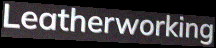
Leatherworking